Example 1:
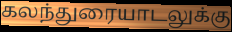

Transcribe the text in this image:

கலந்துரையாடலுக்கு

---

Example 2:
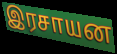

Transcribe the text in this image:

இரசாயன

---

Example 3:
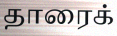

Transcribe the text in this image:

தாரைக்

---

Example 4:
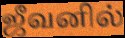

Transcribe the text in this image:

ஜீவனில்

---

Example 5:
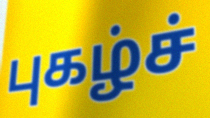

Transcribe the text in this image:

புகழ்ச்